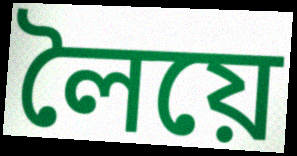
লৈয়ে